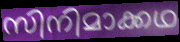
സിനിമാക്കഥ